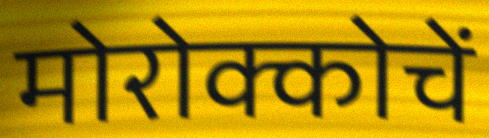
मोरोक्कोचें